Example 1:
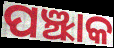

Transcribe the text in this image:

ପଞ୍ଝାକ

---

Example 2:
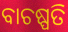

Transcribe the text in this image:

ବାଚଷ୍ପତି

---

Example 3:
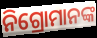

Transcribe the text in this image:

ନିଗ୍ରୋମାନଙ୍କ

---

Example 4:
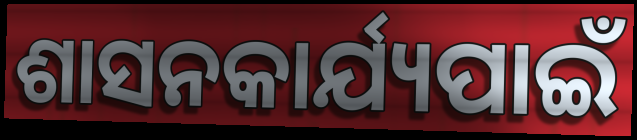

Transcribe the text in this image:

ଶାସନକାର୍ଯ୍ୟପାଇଁ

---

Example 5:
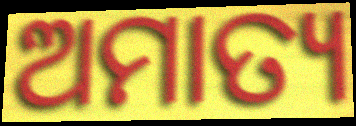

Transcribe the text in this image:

ଅମାତ୍ୟ